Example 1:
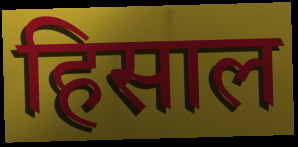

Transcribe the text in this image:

हिसाल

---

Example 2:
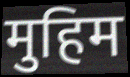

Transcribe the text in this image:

मुहिम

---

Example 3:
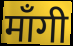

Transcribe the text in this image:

माँगी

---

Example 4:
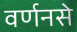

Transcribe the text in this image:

वर्णनसे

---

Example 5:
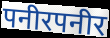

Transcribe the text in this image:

पनीरपनीर